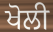
ਖੋਲੀ